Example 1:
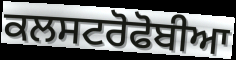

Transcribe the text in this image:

ਕਲਸਟਰੋਫੋਬੀਆ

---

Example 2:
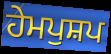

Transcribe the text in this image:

ਹੇਮਪੁਸ਼ਪ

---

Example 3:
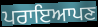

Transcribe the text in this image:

ਪਰਾਇਆਪਣ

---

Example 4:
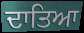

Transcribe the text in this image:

ਦਾਤਿਆ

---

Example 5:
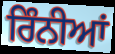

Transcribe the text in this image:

ਰਿੰਨੀਆਂ